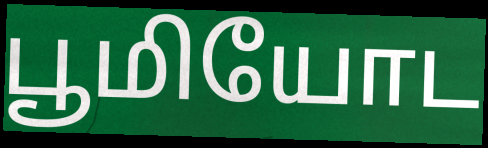
பூமியோட